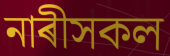
নাৰীসকল